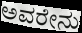
ಅವರೇನು